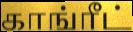
காங்ரீட்